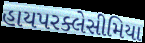
હાયપરક્લેસીમિયા